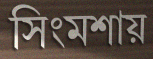
সিংমশায়